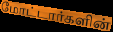
மோட்டார்களின்